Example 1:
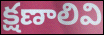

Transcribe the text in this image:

క్షణాలివి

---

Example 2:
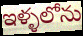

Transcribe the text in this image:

ఇళ్ళలోను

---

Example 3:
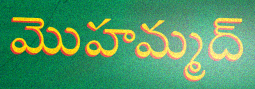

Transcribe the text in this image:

మొహమ్మద్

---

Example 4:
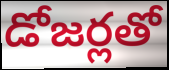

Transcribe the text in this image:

డోజర్లతో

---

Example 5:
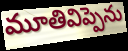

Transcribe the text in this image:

మూతివిప్పెను